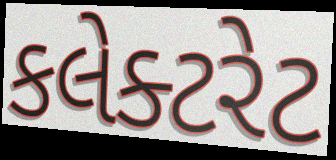
કલેક્ટરેટ